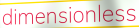
dimensionless